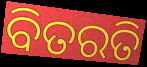
ବିତରତି